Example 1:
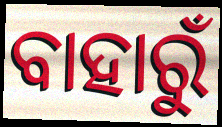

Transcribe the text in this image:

ବାହାରୁଁ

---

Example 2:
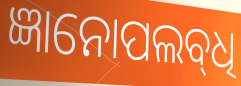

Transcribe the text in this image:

ଜ୍ଞାନୋପଲବ୍‌ଧି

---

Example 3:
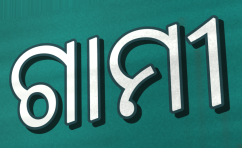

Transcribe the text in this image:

ଗାମୀ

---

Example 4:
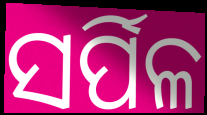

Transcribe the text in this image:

ସର୍ପିଳ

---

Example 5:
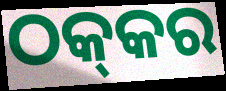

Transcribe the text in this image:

ଠକ୍‍କର